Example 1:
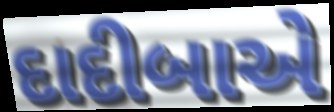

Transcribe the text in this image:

દાદીબાએ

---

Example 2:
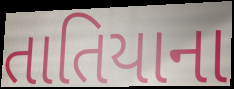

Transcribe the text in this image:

તાતિયાના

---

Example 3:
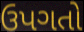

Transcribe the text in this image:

ઉપગતો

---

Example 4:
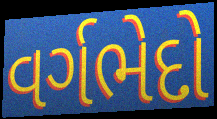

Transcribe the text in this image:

વર્ગભેદો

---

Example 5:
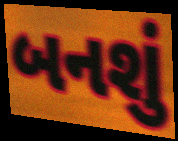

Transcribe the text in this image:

બનશું